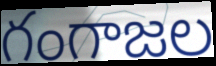
గంగాజల